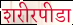
शरीरपीडा